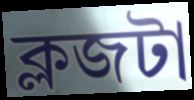
ক্লজটা